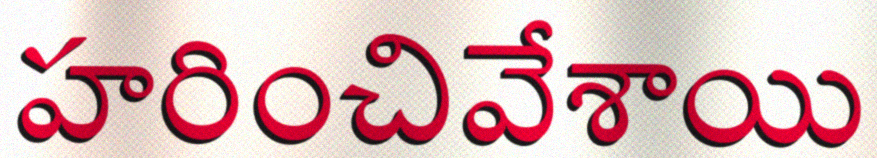
హరించివేశాయి